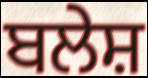
ਬਲੇਸ਼